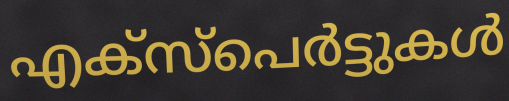
എക്സ്പെർട്ടുകൾ